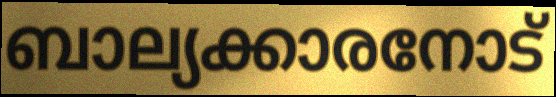
ബാല്യക്കാരനോട്